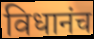
विधानंच